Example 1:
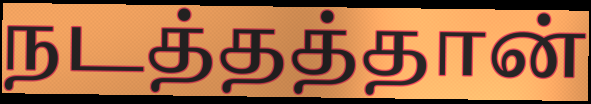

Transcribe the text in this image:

நடத்தத்தான்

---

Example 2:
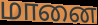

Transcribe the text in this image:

மானை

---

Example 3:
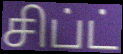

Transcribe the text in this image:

சிப்ட்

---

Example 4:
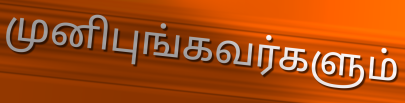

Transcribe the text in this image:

முனிபுங்கவர்களும்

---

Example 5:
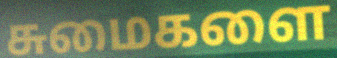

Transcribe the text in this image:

சுமைகளை